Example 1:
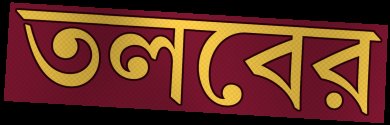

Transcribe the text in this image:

তলবের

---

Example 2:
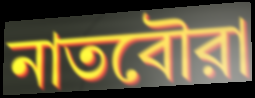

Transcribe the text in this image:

নাতবৌরা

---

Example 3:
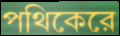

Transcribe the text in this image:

পথিকেরে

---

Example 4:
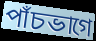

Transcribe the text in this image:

পাঁচভাগে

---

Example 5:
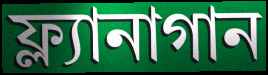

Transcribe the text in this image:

ফ্ল্যানাগান